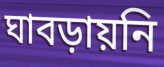
ঘাবড়ায়নি